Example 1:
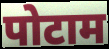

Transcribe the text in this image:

पोटाम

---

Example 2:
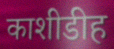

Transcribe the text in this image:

काशीडीह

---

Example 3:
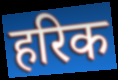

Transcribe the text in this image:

हरिक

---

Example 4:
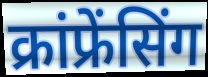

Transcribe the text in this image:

क्रांफ्रेंसिंग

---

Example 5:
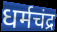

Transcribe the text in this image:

धर्मचंद्र